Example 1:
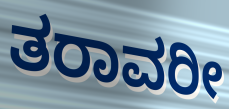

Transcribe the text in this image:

ತರಾವರೀ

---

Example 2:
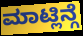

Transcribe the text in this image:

ಮಾಟ್ಲಿನ್ಗೆ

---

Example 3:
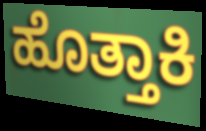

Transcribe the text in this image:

ಹೊತ್ತಾಕಿ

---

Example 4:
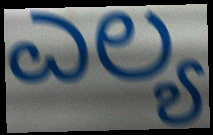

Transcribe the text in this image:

ಎಲ್ಯ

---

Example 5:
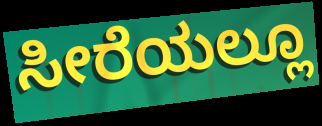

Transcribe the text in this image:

ಸೀರೆಯಲ್ಲೂ